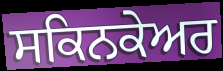
ਸਕਿਨਕੇਅਰ